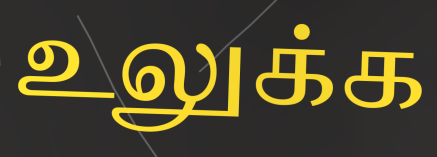
உலுக்க